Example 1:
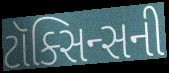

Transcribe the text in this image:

ટૉક્સિન્સની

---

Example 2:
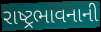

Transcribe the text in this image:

રાષ્ટ્રભાવનાની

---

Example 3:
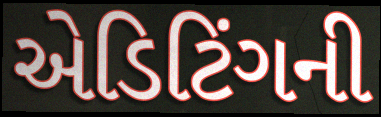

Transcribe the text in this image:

એડિટિંગની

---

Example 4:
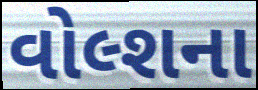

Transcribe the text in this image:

વોલ્શના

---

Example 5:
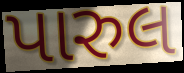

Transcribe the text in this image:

પારુલ